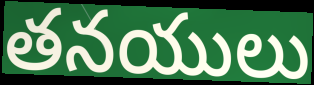
తనయులు